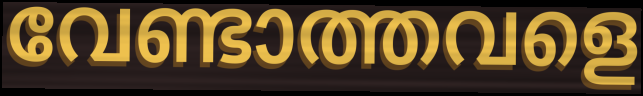
വേണ്ടാത്തവളെ